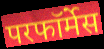
परफॉर्मेस